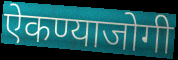
ऐकण्याजोगी